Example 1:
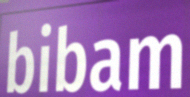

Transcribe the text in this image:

bibam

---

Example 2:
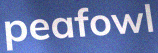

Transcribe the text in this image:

peafowl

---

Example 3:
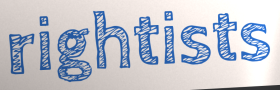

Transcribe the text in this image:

rightists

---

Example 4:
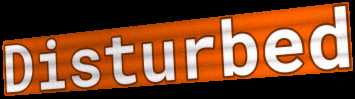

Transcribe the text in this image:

Disturbed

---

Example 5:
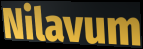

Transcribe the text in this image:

Nilavum